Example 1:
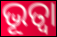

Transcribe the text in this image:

ଭୂତ୍ଵା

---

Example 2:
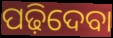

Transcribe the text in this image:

ପଢ଼ିଦେବା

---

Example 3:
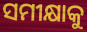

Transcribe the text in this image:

ସମୀକ୍ଷାକୁ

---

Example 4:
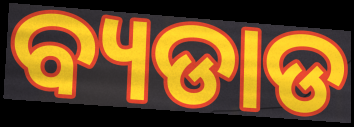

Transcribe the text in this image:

ବ୍ୟଡାଡ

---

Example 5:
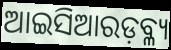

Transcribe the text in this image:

ଆଇସିଆରଡ଼ବ୍ଳ୍ୟ